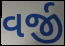
વર્જી